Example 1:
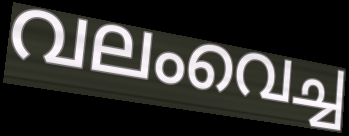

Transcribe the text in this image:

വലംവെച്ച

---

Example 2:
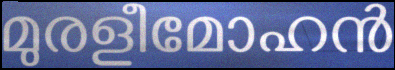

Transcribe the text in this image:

മുരളീമോഹൻ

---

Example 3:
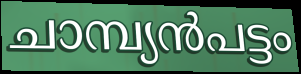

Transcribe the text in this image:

ചാമ്പ്യൻപട്ടം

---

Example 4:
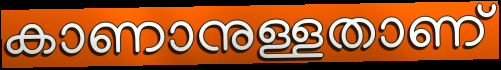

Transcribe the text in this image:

കാണാനുള്ളതാണ്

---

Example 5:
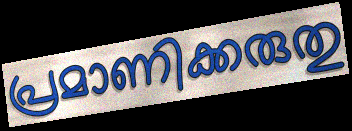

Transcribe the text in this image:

പ്രമാണിക്കരുതു